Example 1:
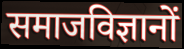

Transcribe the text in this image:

समाजविज्ञानों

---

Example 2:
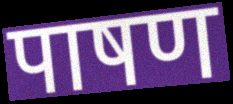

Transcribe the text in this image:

पाषण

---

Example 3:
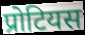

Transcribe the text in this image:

प्रोटियस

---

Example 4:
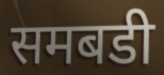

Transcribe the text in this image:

समबडी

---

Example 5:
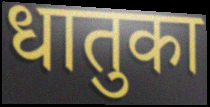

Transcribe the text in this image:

धातुका